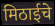
मिठाईचे